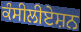
ਕੰਸੀਲੀਏਸ਼ਨ